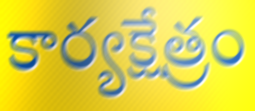
కార్యక్షేత్రం